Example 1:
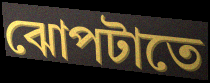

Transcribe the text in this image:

ঝোপটাতে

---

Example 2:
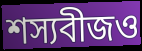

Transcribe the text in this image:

শস্যবীজও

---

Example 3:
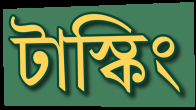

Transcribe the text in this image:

টাস্কিং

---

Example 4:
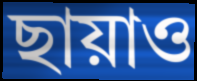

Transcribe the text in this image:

ছায়াও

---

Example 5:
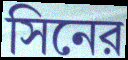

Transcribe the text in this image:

সিনের